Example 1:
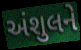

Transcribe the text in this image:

અંશુલને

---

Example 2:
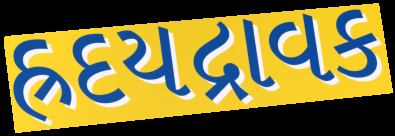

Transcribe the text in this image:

હ્રદયદ્રાવક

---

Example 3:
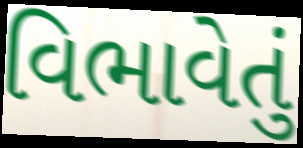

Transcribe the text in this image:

વિભાવેતું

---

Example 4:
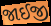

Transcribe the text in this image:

જાઈજી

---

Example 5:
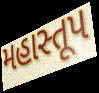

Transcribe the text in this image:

મહાસ્તૂપ